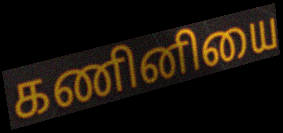
கணினியை